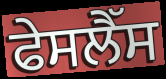
ਫੇਸਲੈੱਸ